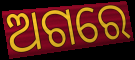
ଅଗରେ